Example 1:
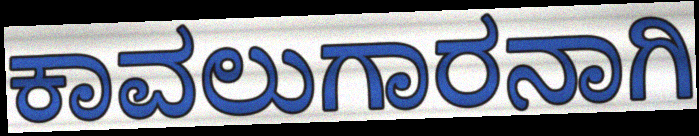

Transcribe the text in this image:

ಕಾವಲುಗಾರನಾಗಿ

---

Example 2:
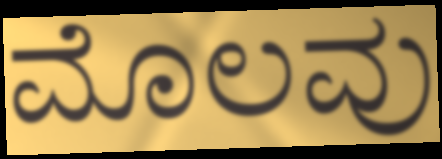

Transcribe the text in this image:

ಮೊಲವು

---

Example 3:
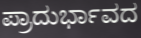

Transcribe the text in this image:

ಪ್ರಾದುರ್ಭಾವದ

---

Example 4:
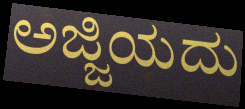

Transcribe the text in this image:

ಅಜ್ಜಿಯದು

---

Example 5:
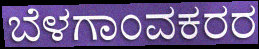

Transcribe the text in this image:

ಬೆಳಗಾಂವಕರರ